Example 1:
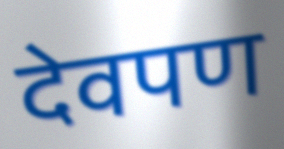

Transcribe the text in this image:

देवपण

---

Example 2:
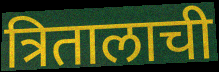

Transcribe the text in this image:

त्रितालाची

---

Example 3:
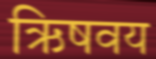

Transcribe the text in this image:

ऋिषवय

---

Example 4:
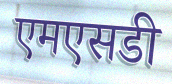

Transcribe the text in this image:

एमएसडी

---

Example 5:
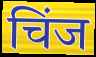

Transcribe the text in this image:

चिंज